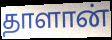
தாளான்